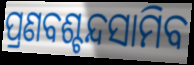
ପ୍ରଣବଶ୍ଚନ୍ଦସାମିବ